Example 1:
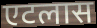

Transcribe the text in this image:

एटलास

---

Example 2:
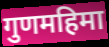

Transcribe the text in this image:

गुणमहिमा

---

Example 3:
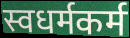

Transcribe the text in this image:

स्वधर्मकर्म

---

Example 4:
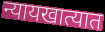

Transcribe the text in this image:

न्यायखात्यात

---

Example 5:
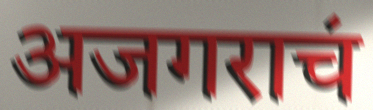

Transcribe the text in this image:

अजगराचं